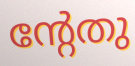
ന്റേതു